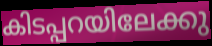
കിടപ്പറയിലേക്കു